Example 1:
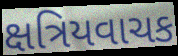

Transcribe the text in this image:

ક્ષત્રિયવાચક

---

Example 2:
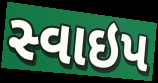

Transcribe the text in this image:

સ્વાઇપ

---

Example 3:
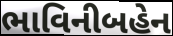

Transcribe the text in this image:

ભાવિનીબહેન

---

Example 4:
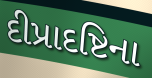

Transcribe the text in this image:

દીપ્રાદષ્ટિના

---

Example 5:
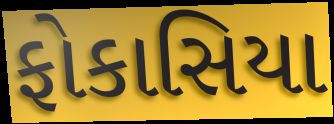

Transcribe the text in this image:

ફોકાસિયા